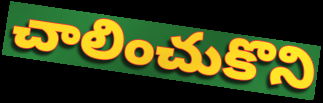
చాలించుకొని